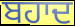
ਬਹਾਦ